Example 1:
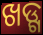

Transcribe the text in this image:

ଖଡ୍ଗ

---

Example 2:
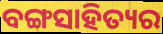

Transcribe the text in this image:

ବଙ୍ଗସାହିତ୍ୟର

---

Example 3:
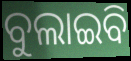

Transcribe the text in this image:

ବୁଲାଇବି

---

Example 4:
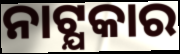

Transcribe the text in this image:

ନାଟ୍ଯକାର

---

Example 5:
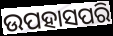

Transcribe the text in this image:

ଉପହାସପରି